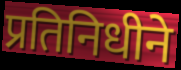
प्रतिनिधीने